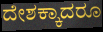
ದೇಶಕ್ಕಾದರೂ